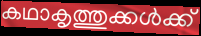
കഥാകൃത്തുക്കൾക്ക്